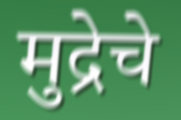
मुद्रेचे